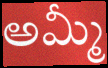
అమ్మీ